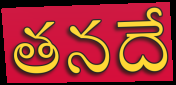
తనదే